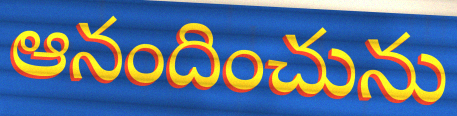
ఆనందించును